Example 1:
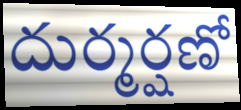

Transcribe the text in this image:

దుర్మర్షణో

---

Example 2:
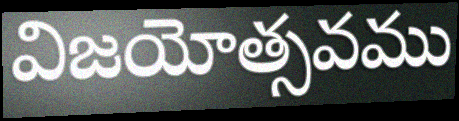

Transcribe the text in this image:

విజయోత్సవము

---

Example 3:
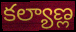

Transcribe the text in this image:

కల్యాణ్ల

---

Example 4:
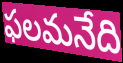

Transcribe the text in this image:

ఫలమనేది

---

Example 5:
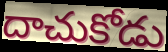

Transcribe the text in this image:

దాచుకోడు